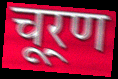
चूर्ण